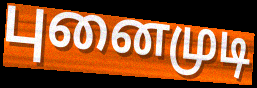
புனைமுடி